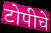
टोपीचे